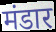
मंडार